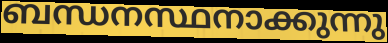
ബന്ധനസ്ഥനാക്കുന്നു